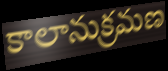
కాలానుక్రమణ